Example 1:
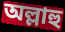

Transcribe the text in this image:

অল্লাহু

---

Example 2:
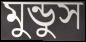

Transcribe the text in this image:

মুন্ডুস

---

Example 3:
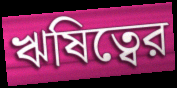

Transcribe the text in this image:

ঋষিত্বের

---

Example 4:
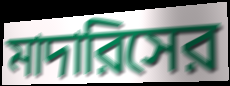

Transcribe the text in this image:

মাদারিসের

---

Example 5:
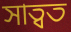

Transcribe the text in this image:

সাত্বত